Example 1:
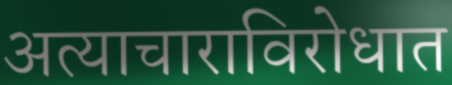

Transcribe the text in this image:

अत्याचाराविरोधात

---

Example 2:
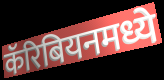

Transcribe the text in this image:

कॅरिबियनमध्ये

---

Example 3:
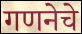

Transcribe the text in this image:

गणनेचे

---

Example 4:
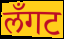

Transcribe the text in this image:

लँगट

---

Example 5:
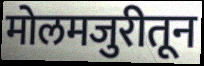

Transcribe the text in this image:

मोलमजुरीतून